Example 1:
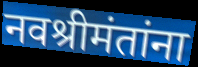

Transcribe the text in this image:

नवश्रीमंतांना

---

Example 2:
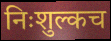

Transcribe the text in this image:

निःशुल्कच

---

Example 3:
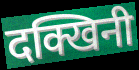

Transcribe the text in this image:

दक्खिनी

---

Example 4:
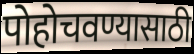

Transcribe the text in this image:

पोहोचवण्यासाठी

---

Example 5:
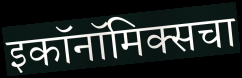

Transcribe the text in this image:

इकॉनॉमिक्सचा